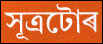
সূত্ৰটোৰ